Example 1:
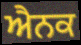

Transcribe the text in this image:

ਐਨਕ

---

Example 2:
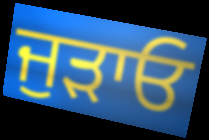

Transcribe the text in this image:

ਜੁੜਾਓ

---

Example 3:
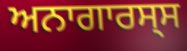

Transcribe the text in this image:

ਅਨਾਗਾਰਸ੍ਸ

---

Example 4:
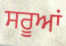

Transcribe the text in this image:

ਸਰੂਆਂ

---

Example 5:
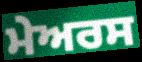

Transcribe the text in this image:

ਮੇਅਰਸ